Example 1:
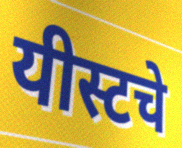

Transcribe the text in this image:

यीस्टचे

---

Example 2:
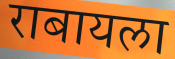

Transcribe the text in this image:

राबायला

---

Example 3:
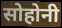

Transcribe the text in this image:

सोहोनी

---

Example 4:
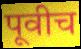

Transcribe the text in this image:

पूवीच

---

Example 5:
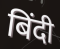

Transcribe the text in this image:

बिंदी